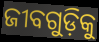
ଜୀବଗୁଡ଼ିକୁ